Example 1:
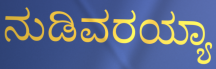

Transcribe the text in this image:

ನುಡಿವರಯ್ಯಾ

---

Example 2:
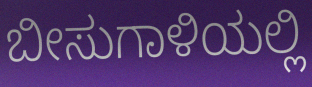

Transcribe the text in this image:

ಬೀಸುಗಾಳಿಯಲ್ಲಿ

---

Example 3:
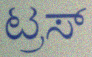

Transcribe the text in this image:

ಟ್ರಸ್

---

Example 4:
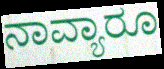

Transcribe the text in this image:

ನಾವ್ಯಾರೂ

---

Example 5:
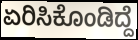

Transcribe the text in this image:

ಏರಿಸಿಕೊಂಡಿದ್ದೆ